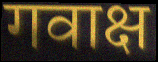
गवाक्ष